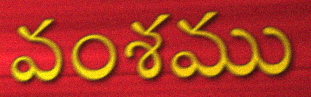
వంశము